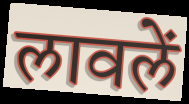
लावलें